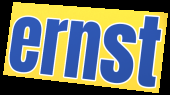
ernst